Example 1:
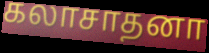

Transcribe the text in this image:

கலாசாதனா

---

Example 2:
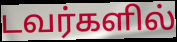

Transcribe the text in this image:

டவர்களில்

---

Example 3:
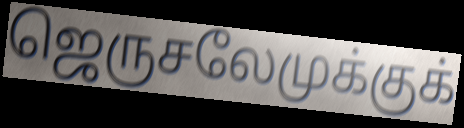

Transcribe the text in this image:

ஜெருசலேமுக்குக்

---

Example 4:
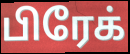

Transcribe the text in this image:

பிரேக்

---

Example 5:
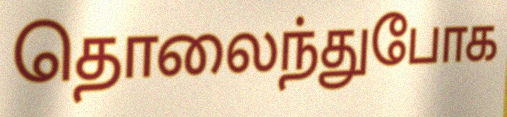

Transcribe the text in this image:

தொலைந்துபோக